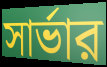
সার্ভার